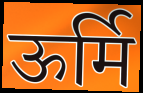
ऊर्मि